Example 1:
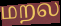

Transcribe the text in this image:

மறல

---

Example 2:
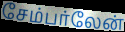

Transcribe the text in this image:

சேம்பர்லேன்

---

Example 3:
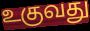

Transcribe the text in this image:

உகுவது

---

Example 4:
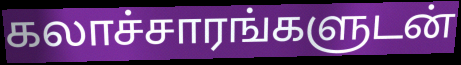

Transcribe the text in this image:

கலாச்சாரங்களுடன்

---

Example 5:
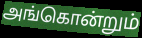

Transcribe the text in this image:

அங்கொன்றும்